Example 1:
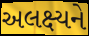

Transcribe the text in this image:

અલક્ષ્યને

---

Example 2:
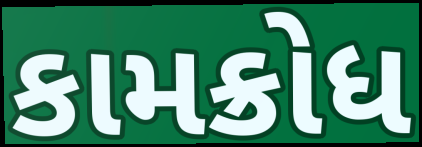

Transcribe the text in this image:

કામક્રોધ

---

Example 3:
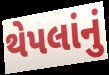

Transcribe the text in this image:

થેપલાંનું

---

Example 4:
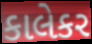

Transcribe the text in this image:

કાલેકર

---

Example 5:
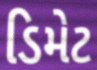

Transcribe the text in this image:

ડિમેટ